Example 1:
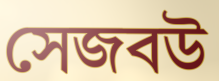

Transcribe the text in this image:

সেজবউ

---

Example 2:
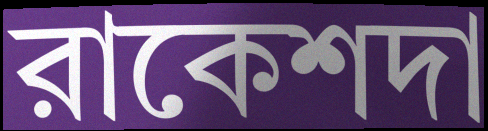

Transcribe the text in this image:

রাকেশদা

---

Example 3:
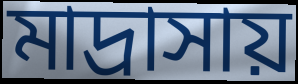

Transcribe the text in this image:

মাদ্রাসায়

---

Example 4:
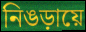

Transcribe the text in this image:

নিঙড়ায়ে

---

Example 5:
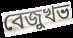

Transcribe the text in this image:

বেজুখভ